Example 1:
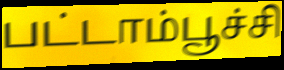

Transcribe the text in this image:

பட்டாம்பூச்சி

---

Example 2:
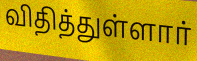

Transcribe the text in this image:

விதித்துள்ளார்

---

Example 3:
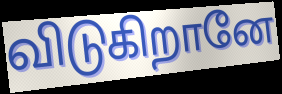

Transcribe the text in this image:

விடுகிறானே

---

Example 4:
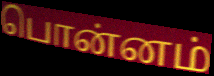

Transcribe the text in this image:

பொன்னம்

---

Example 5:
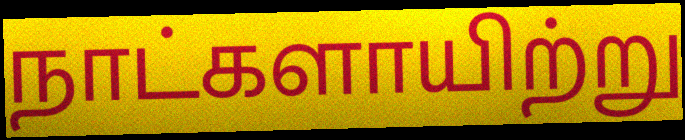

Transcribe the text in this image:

நாட்களாயிற்று